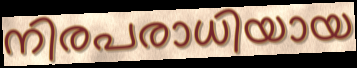
നിരപരാധിയായ